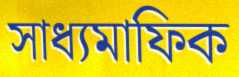
সাধ্যমাফিক